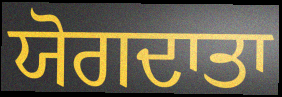
ਯੋਗਦਾਤਾ